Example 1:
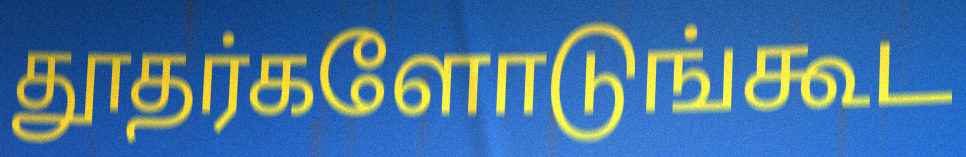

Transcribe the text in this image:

தூதர்களோடுங்கூட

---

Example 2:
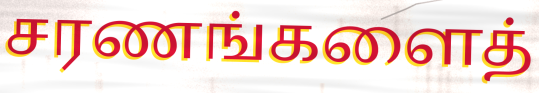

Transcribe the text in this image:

சரணங்களைத்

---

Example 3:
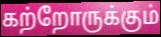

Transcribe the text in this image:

கற்றோருக்கும்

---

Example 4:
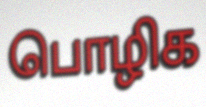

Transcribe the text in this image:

பொழிக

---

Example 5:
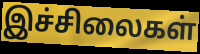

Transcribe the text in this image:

இச்சிலைகள்